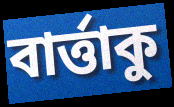
বার্ত্তাকু